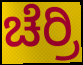
ಚೆರ್ರಿ